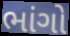
ભાંગો